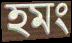
হমং